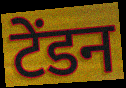
टेंडन